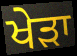
ਖੇੜਾ